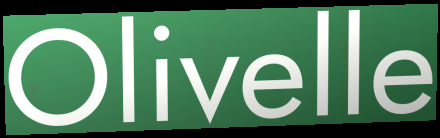
Olivelle